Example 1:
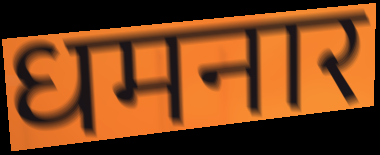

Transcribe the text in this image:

धमनार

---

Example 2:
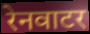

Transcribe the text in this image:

रेनवाटर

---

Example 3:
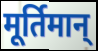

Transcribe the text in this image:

मूर्तिमान्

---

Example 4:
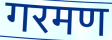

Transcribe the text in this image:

गरमण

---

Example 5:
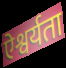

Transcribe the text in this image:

ऐश्वर्यता